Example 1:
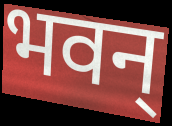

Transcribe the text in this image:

भवन्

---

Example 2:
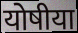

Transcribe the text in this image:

योषीया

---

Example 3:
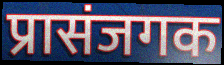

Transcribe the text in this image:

प्रासंजगक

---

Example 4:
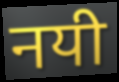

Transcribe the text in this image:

नयी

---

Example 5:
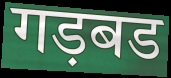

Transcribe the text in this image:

गड़बड